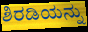
ಶಿರಡಿಯನ್ನು